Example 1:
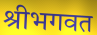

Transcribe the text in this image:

श्रीभगवत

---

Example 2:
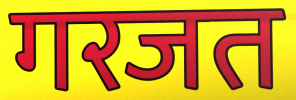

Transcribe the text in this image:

गरजत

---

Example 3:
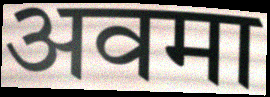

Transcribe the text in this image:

अवमा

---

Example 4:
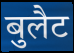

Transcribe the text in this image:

बुलैट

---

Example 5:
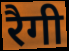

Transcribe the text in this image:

रैगी